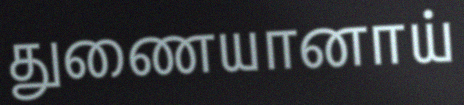
துணையானாய்